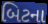
બિટના